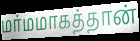
மர்மமாகத்தான்